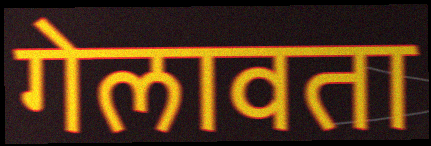
गेलावता